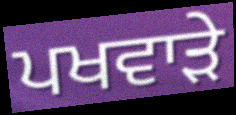
ਪਖਵਾੜੇ